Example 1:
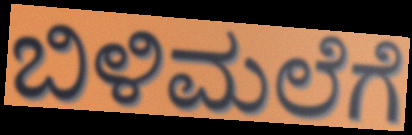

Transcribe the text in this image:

ಬಿಳಿಮಲೆಗೆ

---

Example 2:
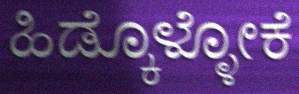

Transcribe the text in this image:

ಹಿಡ್ಕೊಳ್ಳೋಕೆ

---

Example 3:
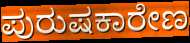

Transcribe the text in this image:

ಪುರುಷಕಾರೇಣ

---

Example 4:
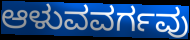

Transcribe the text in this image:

ಆಳುವವರ್ಗವು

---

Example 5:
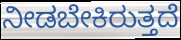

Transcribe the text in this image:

ನೀಡಬೇಕಿರುತ್ತದೆ